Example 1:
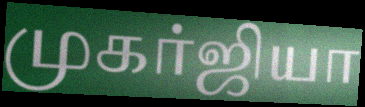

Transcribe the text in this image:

முகர்ஜியா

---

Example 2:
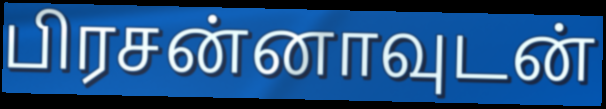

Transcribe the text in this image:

பிரசன்னாவுடன்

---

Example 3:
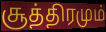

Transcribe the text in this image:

சூத்திரமும்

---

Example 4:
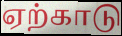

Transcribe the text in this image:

ஏற்காடு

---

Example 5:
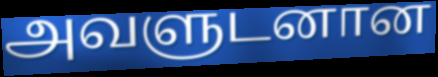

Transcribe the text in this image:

அவளுடனான